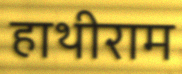
हाथीराम